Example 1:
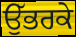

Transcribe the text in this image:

ਉੱਭਰਕੇ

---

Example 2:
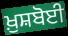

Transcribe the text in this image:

ਖ਼ੁਸ਼ਬੋਈ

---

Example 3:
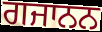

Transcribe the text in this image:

ਗਜਾਨਨ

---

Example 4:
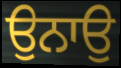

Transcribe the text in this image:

ਉਨਾਉ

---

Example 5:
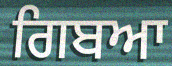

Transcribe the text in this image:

ਗਿਬਆ